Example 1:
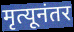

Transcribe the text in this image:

मृत्यूनंतर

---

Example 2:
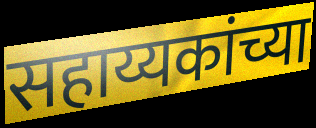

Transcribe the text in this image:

सहाय्यकांच्या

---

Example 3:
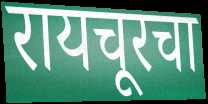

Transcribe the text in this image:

रायचूरचा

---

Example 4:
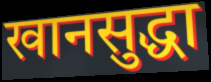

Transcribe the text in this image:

खानसुद्धा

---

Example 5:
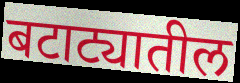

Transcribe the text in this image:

बटाट्यातील